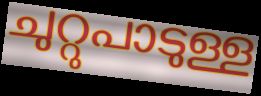
ചുറ്റുപാടുള്ള